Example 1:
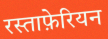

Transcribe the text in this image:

रस्ताफ़ेरियन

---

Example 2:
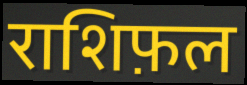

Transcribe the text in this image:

राशिफ़ल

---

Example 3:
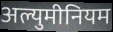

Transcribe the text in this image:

अल्युमीनियम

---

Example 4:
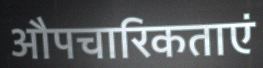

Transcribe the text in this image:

औपचारिकताएं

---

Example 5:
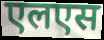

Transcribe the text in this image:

एलएस